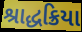
શ્રાદ્ધક્રિયા